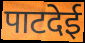
पाटदेई